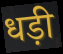
धड़ी